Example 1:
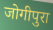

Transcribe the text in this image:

जोगीपुरा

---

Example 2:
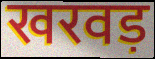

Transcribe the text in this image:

खरवड़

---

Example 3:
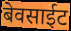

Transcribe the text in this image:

बेवसाईट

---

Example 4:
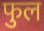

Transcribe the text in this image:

फुल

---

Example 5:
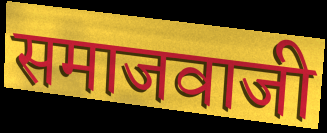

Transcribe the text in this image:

समाजवाजी